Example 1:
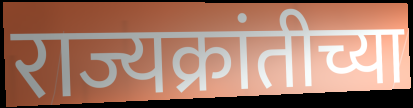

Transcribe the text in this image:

राज्यक्रांतीच्या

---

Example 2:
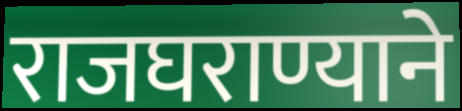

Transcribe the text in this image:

राजघराण्याने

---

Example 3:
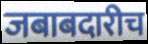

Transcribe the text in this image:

जबाबदारीच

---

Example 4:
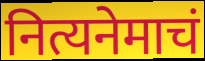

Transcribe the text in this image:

नित्यनेमाचं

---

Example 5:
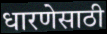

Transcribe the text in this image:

धारणेसाठी